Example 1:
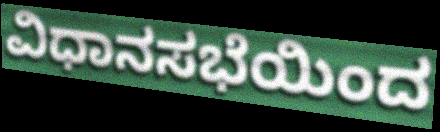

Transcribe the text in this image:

ವಿಧಾನಸಭೆಯಿಂದ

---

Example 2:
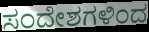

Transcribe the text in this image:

ಸಂದೇಶಗಳಿಂದ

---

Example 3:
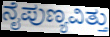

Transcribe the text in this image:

ನೈಪುಣ್ಯವಿತ್ತು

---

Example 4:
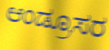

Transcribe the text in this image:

ಆಂಡ್ರೂಸರ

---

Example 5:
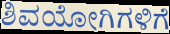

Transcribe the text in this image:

ಶಿವಯೋಗಿಗಳಿಗೆ